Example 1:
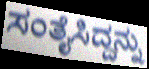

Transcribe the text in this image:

ಸಂತೈಸಿದ್ದನ್ನು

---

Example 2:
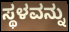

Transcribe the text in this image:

ಸ್ಥಳವನ್ನು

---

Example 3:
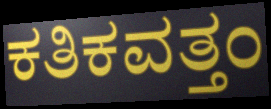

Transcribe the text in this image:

ಕತಿಕವತ್ತಂ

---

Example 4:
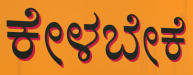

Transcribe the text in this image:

ಕೇಳಬೇಕೆ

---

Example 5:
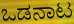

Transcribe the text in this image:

ಒಡನಾಟ